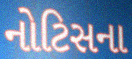
નોટિસના